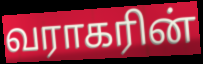
வராகரின்